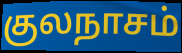
குலநாசம்